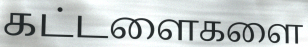
கட்டளைகளை